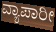
ವ್ಯಾಪಾರೀ